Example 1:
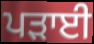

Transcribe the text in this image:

ਪੜਾਈ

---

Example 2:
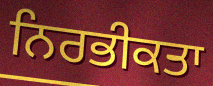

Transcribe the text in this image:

ਨਿਰਭੀਕਤਾ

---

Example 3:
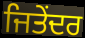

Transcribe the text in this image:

ਜਿਤੇਂਦਰ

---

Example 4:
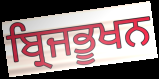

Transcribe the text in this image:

ਬ੍ਰਿਜਭੂਖਨ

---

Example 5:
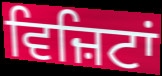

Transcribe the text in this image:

ਵਿਜ਼ਿਟਾਂ